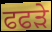
ਫਫਡ਼ੇ